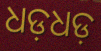
ଧଡ଼ଧଡ଼